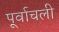
पूर्वाचली